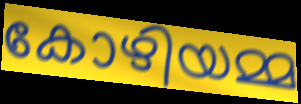
കോഴിയമ്മ